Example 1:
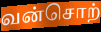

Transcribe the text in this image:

வன்சொற்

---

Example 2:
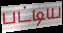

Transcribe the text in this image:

பட்டிய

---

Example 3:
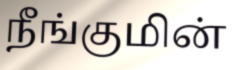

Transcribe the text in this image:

நீங்குமின்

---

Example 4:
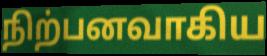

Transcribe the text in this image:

நிற்பனவாகிய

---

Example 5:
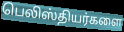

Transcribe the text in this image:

பெலிஸ்தியர்களை